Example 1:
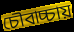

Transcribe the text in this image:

চৌবাচ্চায়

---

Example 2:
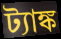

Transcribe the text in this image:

ট্যাঙ্ক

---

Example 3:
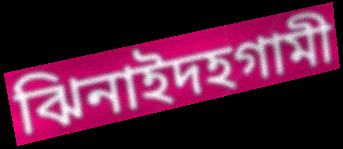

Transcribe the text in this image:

ঝিনাইদহগামী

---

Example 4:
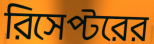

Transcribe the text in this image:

রিসেপ্টরের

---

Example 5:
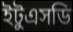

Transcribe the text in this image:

ইটুএসডি